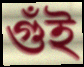
গুঁই